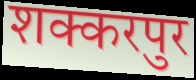
शक्करपुर